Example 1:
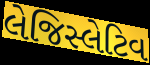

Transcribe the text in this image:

લેજિસ્લેટિવ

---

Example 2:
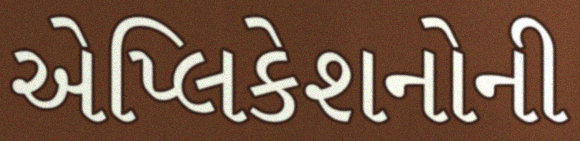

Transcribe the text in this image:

એપ્લિકેશનોની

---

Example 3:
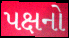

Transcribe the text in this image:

પક્ષનો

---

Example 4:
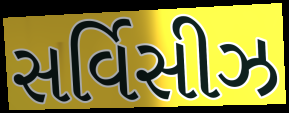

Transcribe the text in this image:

સર્વિસીઝ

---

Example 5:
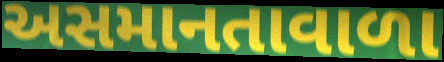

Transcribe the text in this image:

અસમાનતાવાળા